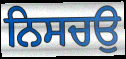
ਨਿਸਚਉ